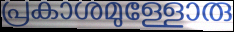
പ്രകാശമുള്ളോരു